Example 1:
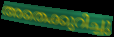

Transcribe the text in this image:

അതെക്കുറിച്ചു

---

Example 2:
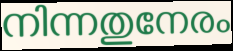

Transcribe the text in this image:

നിന്നതുനേരം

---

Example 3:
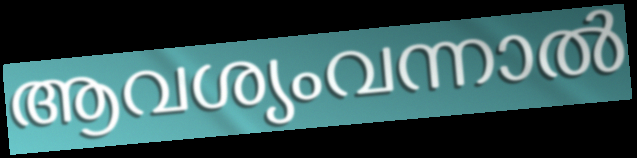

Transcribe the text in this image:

ആവശ്യംവന്നാൽ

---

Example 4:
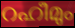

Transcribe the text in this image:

റഹീമും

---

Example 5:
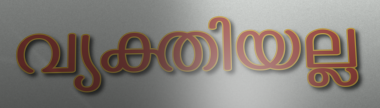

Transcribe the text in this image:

വ്യക്തിയല്ല